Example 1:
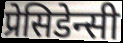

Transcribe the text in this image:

प्रेसिडेन्सी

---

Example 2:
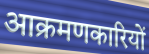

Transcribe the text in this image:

आक्रमणकारियों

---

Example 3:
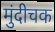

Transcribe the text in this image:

मुंदीचक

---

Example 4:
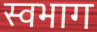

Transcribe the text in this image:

स्वभाग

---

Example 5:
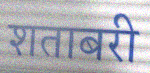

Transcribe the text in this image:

शताबरी